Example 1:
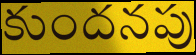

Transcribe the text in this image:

కుందనపు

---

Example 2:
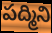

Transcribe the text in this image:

పద్మిని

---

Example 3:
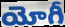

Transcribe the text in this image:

యోగీ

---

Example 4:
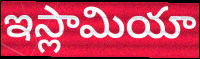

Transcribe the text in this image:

ఇస్లామియా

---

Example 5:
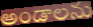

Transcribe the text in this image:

అండాలను